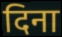
दिना